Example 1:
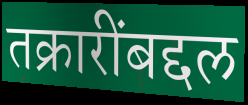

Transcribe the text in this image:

तक्रारींबद्दल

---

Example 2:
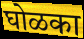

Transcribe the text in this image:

घोळका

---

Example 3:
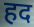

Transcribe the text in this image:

हद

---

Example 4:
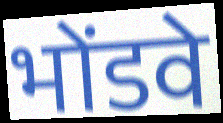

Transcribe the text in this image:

भोंडवे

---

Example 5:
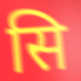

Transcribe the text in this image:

सि